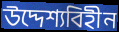
উদ্দেশ্যবিহীন